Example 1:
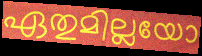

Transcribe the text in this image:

ഏതുമില്ലയോ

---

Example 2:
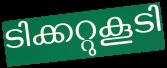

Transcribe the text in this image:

ടിക്കറ്റുകൂടി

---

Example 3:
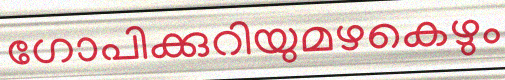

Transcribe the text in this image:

ഗോപിക്കുറിയുമഴകെഴും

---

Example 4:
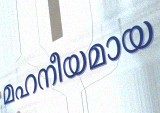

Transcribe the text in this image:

മഹനീയമായ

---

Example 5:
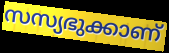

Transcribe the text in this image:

സസ്യഭുക്കാണ്